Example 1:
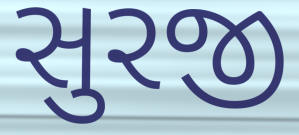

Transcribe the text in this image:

સુરજી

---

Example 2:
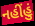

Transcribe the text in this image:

નહીંહું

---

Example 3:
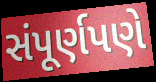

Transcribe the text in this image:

સંપૂર્ણપણે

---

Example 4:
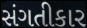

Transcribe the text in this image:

સંગતીકાર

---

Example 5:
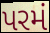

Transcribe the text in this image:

પરમં